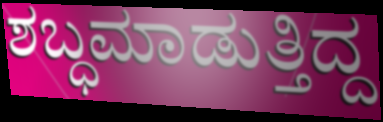
ಶಬ್ಧಮಾಡುತ್ತಿದ್ದ